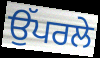
ਉੱਪਰਲੇ